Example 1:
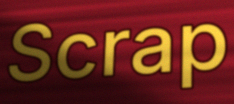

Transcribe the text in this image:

Scrap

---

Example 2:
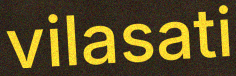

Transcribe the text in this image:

vilasati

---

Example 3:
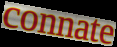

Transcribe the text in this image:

connate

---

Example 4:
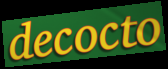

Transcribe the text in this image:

decocto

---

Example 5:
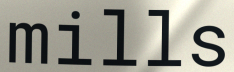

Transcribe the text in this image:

mills